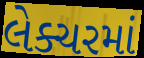
લેક્ચરમાં